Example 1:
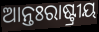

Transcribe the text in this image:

ଆନ୍ତଃରାଷ୍ଟ୍ରୀୟ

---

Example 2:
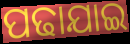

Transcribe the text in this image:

ପଢାଯାଇ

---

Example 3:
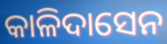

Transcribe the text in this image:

କାଳିଦାସେନ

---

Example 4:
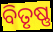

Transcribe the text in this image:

ବିତୃଷ୍ଣ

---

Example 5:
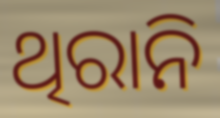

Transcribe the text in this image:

ଥିରାନି